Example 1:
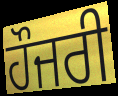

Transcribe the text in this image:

ਹੌਜਰੀ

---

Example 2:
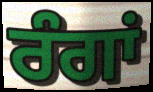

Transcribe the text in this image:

ਰੰਗਾਂ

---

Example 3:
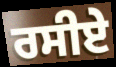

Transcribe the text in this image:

ਰਸੀਏ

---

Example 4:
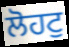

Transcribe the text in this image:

ਲੋਹਟੁ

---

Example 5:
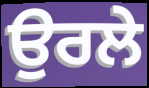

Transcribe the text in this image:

ਉਰਲੇ